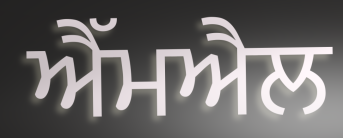
ਐੱਮਐਲ